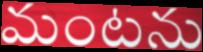
మంటను